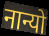
नान्यो